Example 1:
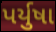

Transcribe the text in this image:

પર્યુષા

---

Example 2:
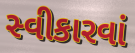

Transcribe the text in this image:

સ્વીકારવાં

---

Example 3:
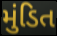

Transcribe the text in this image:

મુંડિત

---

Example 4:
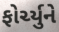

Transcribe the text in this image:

ફોર્ચ્યુને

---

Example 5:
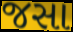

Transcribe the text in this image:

જસા